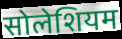
सोलेशियम